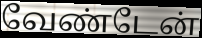
வேண்டேன்